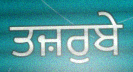
ਤਜ਼ਰੁਬੇ